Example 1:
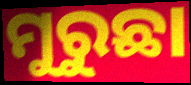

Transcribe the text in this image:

ମୁରୁଛା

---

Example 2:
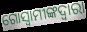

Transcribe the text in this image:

ଗୋସ୍ୱାମୀଙ୍କଦ୍ୱାରା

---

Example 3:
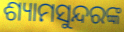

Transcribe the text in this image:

ଶ୍ୟାମସୁନ୍ଦରଙ୍କ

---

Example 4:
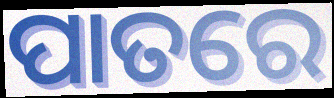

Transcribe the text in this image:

ପାତରେ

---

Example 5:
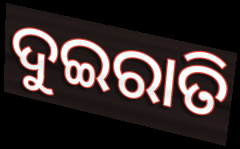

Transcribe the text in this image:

ଦୁଇରାତି